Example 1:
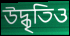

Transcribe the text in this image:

উদ্ধৃতিও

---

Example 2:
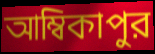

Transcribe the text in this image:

আম্বিকাপুর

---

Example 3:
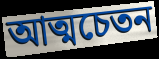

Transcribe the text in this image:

আত্মচেতন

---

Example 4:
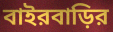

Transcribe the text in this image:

বাইরবাড়ির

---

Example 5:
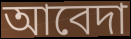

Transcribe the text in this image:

আবেদা